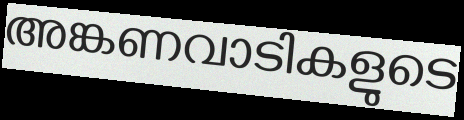
അങ്കണവാടികളുടെ